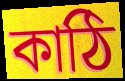
কাঠি